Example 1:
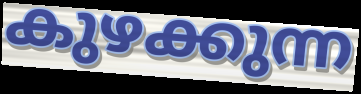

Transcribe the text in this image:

കുഴക്കുന്ന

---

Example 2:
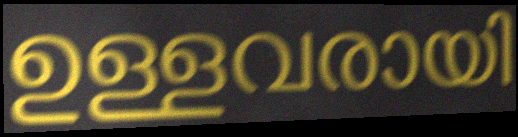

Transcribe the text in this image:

ഉള്ളവരായി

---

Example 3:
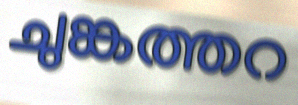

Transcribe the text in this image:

ചുങ്കത്തറ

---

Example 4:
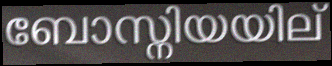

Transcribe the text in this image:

ബോസ്നിയയില്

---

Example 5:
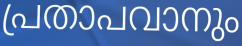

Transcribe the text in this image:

പ്രതാപവാനും